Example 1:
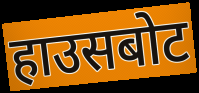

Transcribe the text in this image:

हाउसबोट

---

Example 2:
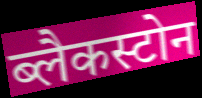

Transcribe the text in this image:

ब्‍लैकस्‍टोन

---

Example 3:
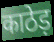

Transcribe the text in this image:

काठेड़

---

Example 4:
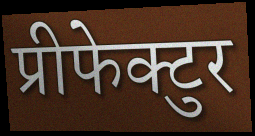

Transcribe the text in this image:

प्रीफेक्टुर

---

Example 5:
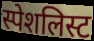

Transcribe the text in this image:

स्पेशलिस्ट